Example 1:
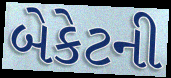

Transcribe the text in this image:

બેકેટની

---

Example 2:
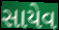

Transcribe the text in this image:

સાયેવ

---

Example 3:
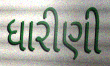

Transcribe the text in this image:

ધારીણી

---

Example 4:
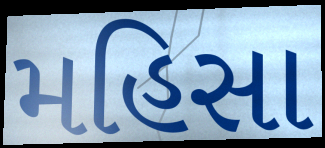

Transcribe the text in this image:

મહિસા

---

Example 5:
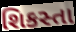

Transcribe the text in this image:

શિકસ્તા